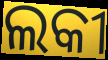
ଲକୀ